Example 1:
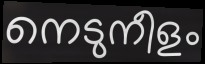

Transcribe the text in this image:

നെടുനീളം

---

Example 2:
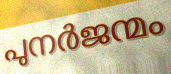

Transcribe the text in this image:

പുനർജന്മം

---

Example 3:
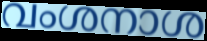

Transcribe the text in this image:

വംശനാശ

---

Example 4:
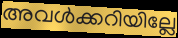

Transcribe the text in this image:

അവൾക്കറിയില്ലേ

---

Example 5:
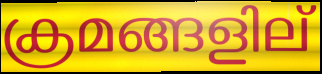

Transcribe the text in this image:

ക്രമങ്ങളില്